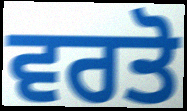
ਵਰਤੋ